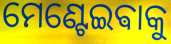
ମେଣ୍ଟେଇଵାକୁ